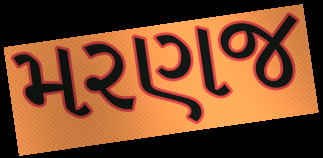
મરણજ